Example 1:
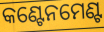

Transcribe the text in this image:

କଣ୍ଟେନମେଣ୍ଟ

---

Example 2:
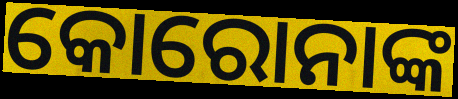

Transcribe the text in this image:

କୋରୋନାଙ୍କ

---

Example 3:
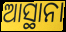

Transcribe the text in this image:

ଆସ୍ଥାନା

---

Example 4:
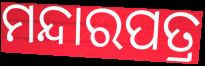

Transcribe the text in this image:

ମନ୍ଦାରପତ୍ର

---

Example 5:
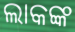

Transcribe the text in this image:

ଲାକଙ୍କ